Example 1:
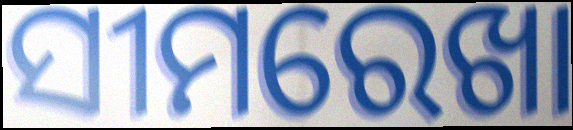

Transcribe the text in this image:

ସୀମରେଖା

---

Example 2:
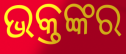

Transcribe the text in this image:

ଭକ୍ତଙ୍କର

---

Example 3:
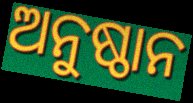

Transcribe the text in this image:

ଅନୁଷ୍ଠାନ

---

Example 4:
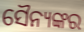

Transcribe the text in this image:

ସୈନ୍ୟଙ୍କର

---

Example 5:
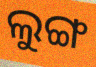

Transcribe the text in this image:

ଲୁଙ୍ଗ